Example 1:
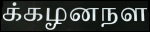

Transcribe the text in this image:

க்கழனநள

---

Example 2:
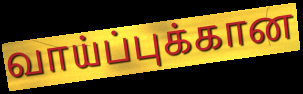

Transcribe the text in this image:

வாய்ப்புக்கான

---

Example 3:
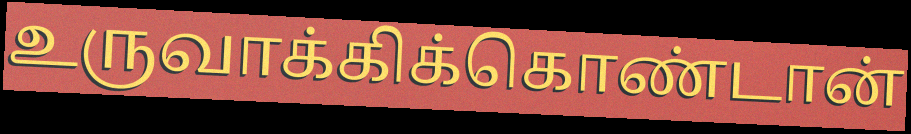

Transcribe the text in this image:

உருவாக்கிக்கொண்டான்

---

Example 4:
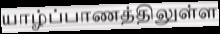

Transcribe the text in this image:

யாழ்ப்பாணத்திலுள்ள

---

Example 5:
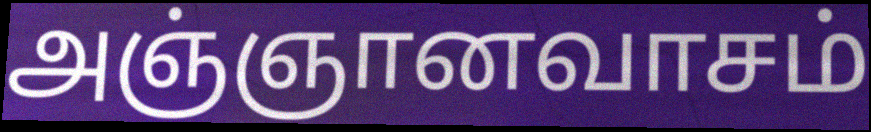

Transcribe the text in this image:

அஞ்ஞானவாசம்